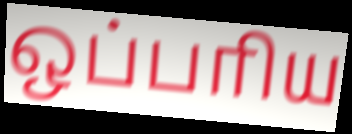
ஒப்பரிய